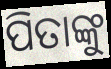
ପିତାଙ୍କୁ